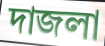
দাজলা